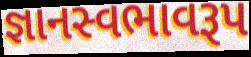
જ્ઞાનસ્વભાવરૂપ